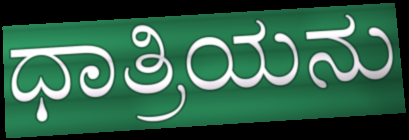
ಧಾತ್ರಿಯನು